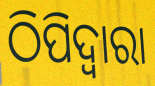
ଠିପିଦ୍ଵାରା